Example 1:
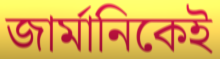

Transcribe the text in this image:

জার্মানিকেই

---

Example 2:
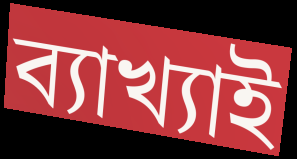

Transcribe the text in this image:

ব্যাখ্যাই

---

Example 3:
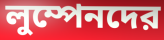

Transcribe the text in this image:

লুম্পেনদের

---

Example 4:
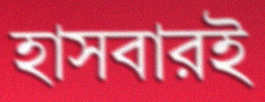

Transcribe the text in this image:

হাসবারই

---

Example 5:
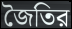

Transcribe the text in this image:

জৈতির